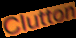
Clutton